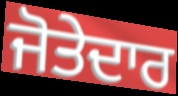
ਜੋਤੇਦਾਰ